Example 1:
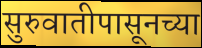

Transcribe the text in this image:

सुरुवातीपासूनच्या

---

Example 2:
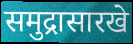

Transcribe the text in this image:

समुद्रासारखे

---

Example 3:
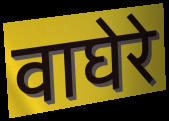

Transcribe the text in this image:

वाघेरे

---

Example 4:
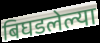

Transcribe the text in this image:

बिघडलेल्या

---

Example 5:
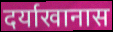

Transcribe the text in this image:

दर्याखानास